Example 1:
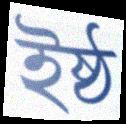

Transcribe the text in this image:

ইষ্ঠ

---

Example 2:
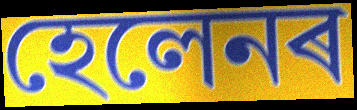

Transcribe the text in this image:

হেলেনৰ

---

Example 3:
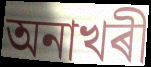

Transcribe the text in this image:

অনাখৰী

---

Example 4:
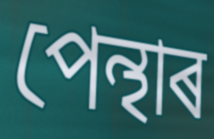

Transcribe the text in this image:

পেন্থাৰ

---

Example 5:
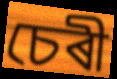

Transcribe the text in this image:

চেৰী